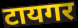
टायगर